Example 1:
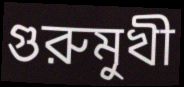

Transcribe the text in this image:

গুরুমুখী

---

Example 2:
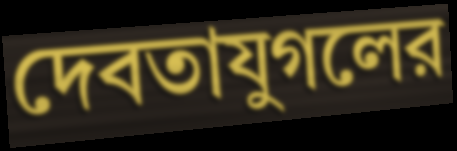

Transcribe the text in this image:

দেবতাযুগলের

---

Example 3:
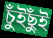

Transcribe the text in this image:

চুঁইছুঁই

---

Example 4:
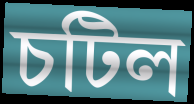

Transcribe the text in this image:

চটিল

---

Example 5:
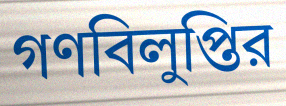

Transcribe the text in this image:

গণবিলুপ্তির